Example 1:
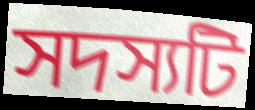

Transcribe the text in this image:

সদস্যটি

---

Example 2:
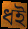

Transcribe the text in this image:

ধই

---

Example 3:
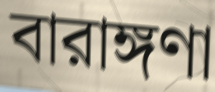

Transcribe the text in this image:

বারাঙ্গণা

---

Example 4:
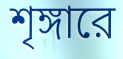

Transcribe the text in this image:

শৃঙ্গারে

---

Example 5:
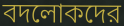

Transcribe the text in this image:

বদলোকদের